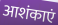
आशंकाएं